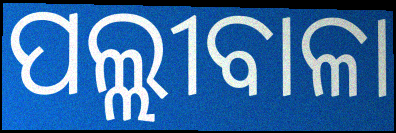
ପଲ୍ଲୀବାଳା